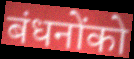
बंधनोंको